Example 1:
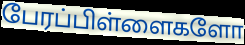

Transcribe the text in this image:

பேரப்பிள்ளைகளோ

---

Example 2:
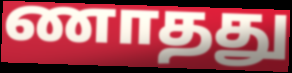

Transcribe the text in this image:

ணாதது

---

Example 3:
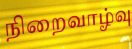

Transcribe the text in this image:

நிறைவாழ்வு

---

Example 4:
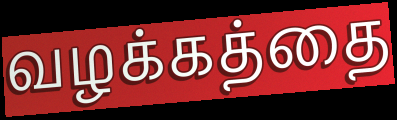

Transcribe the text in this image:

வழக்கத்தை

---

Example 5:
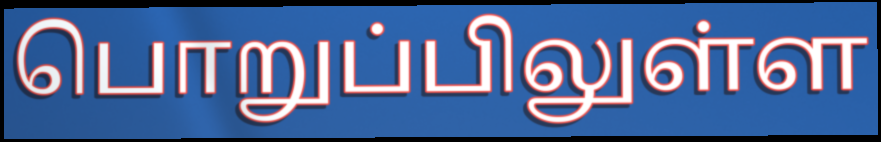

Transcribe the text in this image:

பொறுப்பிலுள்ள